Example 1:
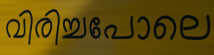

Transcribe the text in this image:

വിരിച്ചപോലെ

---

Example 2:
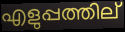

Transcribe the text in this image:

എളുപ്പത്തില്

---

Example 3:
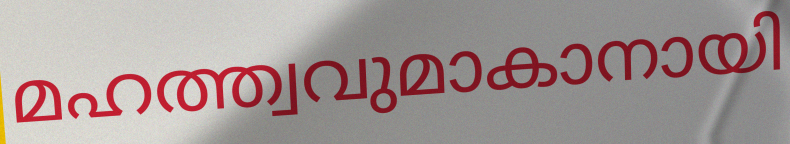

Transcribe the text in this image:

മഹത്ത്വവുമാകാനായി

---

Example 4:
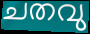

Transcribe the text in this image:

ചതവു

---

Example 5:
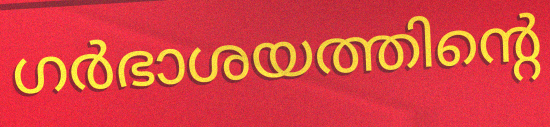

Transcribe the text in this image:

ഗർഭാശയത്തിന്റെ